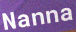
Nanna